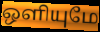
ஒளியுமே